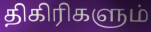
திகிரிகளும்